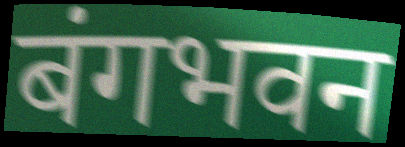
बंगभवन